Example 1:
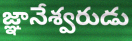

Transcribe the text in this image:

జ్ఞానేశ్వరుడు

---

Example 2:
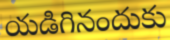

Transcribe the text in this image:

యడిగినందుకు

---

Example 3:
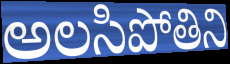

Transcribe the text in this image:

అలసిపోతిని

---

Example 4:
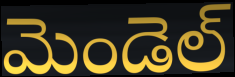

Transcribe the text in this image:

మెండెల్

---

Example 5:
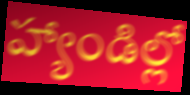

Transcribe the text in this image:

హ్యాండిల్లో